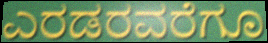
ಎರಡರವರೆಗೂ